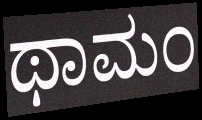
ಥಾಮಂ